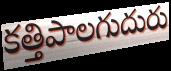
కత్తిపాలగుదురు